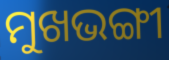
ମୁଖଭଙ୍ଗୀ